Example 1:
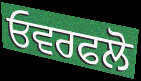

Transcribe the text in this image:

ਓਵਰਫਲੋ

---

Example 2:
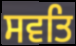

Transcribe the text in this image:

ਸਵਤਿ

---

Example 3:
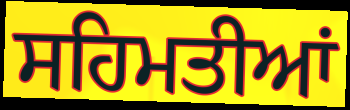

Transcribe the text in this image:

ਸਹਿਮਤੀਆਂ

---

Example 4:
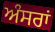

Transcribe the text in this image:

ਅੰਸਰਾਂ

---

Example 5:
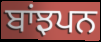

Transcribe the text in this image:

ਬਾਂਝਪਨ